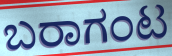
ಬರಾಗಂಟ